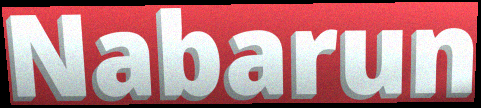
Nabarun